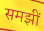
समझीं